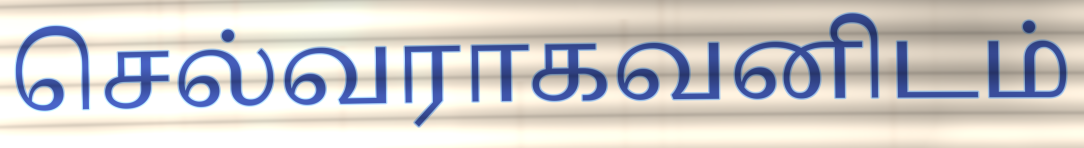
செல்வராகவனிடம்